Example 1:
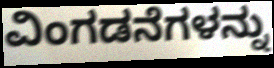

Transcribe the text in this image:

ವಿಂಗಡನೆಗಳನ್ನು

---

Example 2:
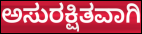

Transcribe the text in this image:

ಅಸುರಕ್ಷಿತವಾಗಿ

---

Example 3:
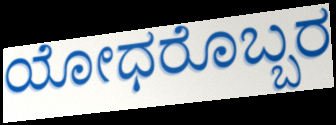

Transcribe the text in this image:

ಯೋಧರೊಬ್ಬರ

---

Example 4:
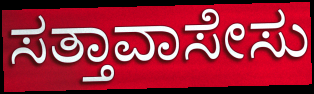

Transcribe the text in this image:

ಸತ್ತಾವಾಸೇಸು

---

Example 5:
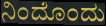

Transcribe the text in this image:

ನಿಂದೊಂದು